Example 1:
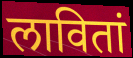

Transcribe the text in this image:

लावितां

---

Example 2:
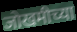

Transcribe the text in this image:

जोखमीच्या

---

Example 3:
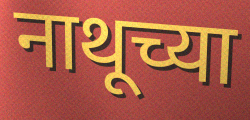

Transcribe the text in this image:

नाथूच्या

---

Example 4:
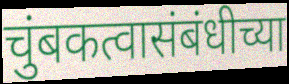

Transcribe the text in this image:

चुंबकत्वासंबंधीच्या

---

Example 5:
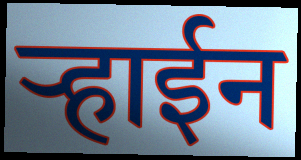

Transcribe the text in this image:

ऱ्हाईन